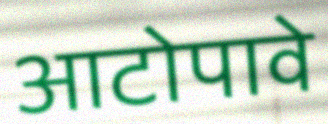
आटोपावे